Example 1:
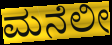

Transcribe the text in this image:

ಮನೆಲೀ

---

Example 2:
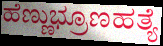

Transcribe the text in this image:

ಹೆಣ್ಣುಭ್ರೂಣಹತ್ಯೆ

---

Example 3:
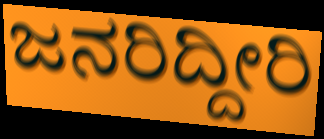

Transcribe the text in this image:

ಜನರಿದ್ದೀರಿ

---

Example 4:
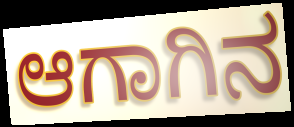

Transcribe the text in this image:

ಆಗಾಗಿನ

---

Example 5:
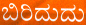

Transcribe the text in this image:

ಬಿರಿದುದು